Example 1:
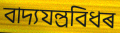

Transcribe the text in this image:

বাদ্যযন্ত্ৰবিধৰ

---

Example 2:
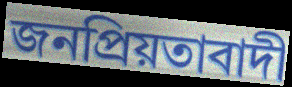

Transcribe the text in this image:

জনপ্ৰিয়তাবাদী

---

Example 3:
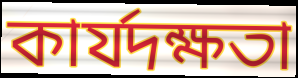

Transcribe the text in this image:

কাৰ্যদক্ষতা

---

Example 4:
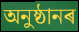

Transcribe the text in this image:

অনুষ্ঠানৰ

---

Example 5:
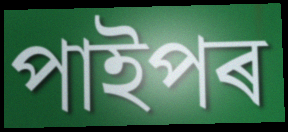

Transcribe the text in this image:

পাইপৰ